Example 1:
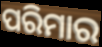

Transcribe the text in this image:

ପରିମାର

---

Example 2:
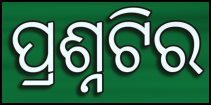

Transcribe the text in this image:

ପ୍ରଶ୍ନଟିର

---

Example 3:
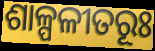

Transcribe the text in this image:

ଶାଳ୍ପଳୀତରୂଃ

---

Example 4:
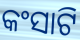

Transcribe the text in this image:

କଂସାଟି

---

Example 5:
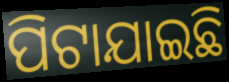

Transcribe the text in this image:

ପିଟାଯାଇଛି